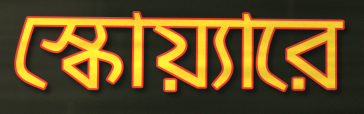
স্কোয়্যারে